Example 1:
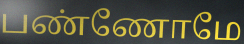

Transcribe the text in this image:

பண்ணோமே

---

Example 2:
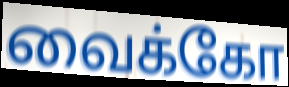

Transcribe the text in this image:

வைக்கோ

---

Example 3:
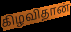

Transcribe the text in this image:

கிழவிதான்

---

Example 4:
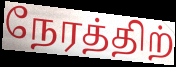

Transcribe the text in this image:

நேரத்திற்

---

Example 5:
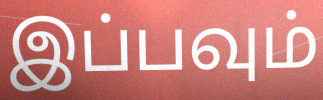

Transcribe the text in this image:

இப்பவும்